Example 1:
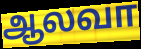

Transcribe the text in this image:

ஆலவா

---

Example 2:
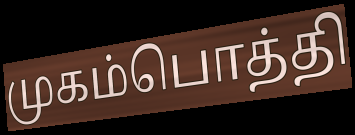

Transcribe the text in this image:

முகம்பொத்தி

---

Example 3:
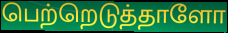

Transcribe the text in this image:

பெற்றெடுத்தாளோ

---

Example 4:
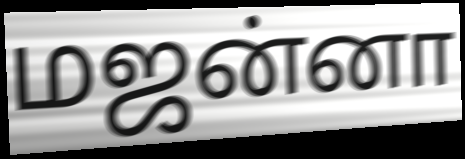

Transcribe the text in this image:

மஜன்னா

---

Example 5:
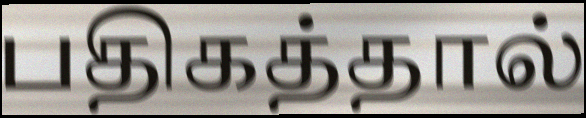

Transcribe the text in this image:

பதிகத்தால்